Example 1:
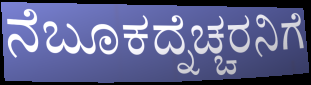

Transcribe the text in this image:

ನೆಬೂಕದ್ನೆಚ್ಚರನಿಗೆ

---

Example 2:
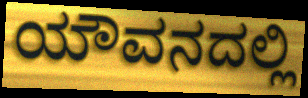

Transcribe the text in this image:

ಯೌವನದಲ್ಲಿ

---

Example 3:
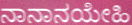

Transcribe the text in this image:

ನಾನಾನಯೇಹಿ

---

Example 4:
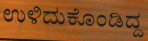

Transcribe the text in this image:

ಉಳಿದುಕೊಂಡಿದ್ದ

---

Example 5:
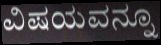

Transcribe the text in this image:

ವಿಷಯವನ್ನೂ